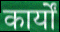
कार्यों